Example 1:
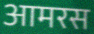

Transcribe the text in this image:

आमरस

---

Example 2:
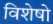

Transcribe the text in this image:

विशेषो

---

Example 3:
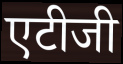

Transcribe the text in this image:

एटीजी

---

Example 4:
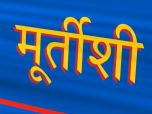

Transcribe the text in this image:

मूर्तीशी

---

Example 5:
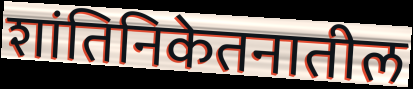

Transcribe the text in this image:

शांतिनिकेतनातील